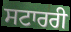
ਸਟਾਰਰੀ